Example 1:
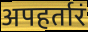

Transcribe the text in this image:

अपहर्तारं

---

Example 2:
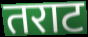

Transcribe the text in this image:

तराट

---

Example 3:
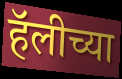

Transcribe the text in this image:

हॅलीच्या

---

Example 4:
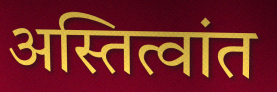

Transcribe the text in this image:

अस्तित्वांत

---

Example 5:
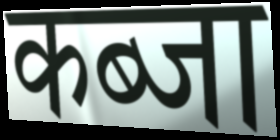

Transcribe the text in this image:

कब्जा